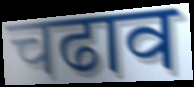
चढाव